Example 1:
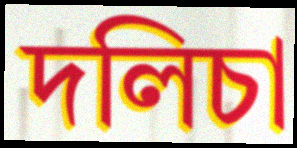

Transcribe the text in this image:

দলিচা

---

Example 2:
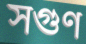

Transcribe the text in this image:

সগুণ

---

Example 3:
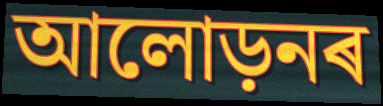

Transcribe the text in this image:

আলোড়নৰ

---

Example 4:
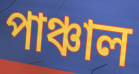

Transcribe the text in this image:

পাঞ্চাল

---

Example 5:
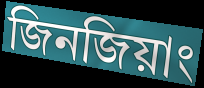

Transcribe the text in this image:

জিনজিয়াং